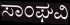
ಸಾಂಘವಿ